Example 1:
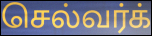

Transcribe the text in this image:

செல்வர்க்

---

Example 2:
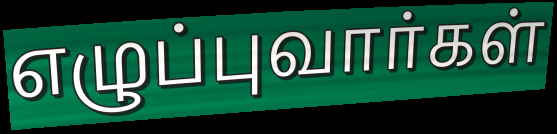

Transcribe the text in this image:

எழுப்புவார்கள்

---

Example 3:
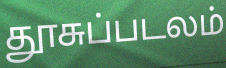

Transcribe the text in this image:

தூசுப்படலம்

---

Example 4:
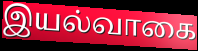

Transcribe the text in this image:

இயல்வாகை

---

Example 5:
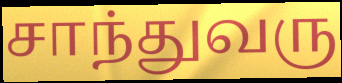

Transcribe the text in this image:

சாந்துவரு